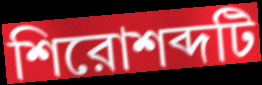
শিরোশব্দটি